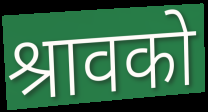
श्रावको